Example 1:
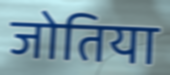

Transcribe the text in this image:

जोतिया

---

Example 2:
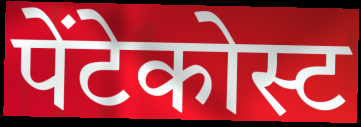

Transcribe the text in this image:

पेंटेकोस्ट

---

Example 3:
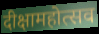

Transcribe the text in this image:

दीक्षामहोत्सव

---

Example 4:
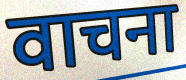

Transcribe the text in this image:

वाचना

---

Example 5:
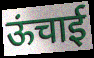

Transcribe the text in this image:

ऊंचाई